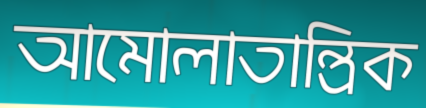
আমোলাতান্ত্ৰিক